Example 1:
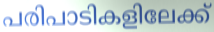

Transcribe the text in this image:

പരിപാടികളിലേക്ക്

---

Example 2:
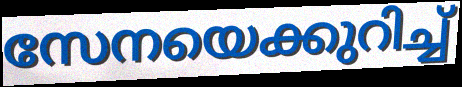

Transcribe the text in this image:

സേനയെക്കുറിച്ച്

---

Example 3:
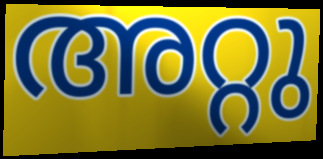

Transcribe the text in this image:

അറ്റു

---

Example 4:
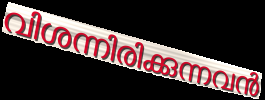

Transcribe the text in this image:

വിശന്നിരിക്കുന്നവൻ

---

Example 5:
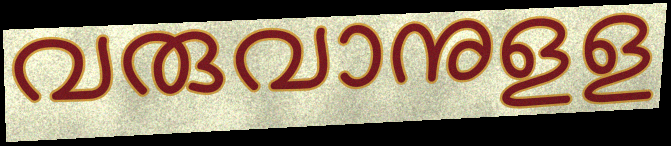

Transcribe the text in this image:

വരുവാനുളള